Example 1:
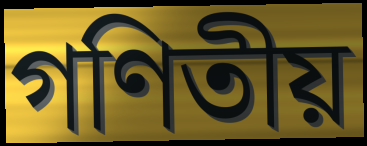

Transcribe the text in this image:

গণিতীয়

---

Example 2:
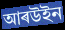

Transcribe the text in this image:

আৰউইন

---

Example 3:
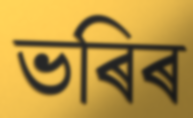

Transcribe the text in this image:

ভৰিৰ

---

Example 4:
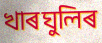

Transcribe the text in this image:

খাৰঘুলিৰ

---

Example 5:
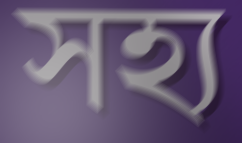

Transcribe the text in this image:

সহ্য